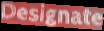
Designate